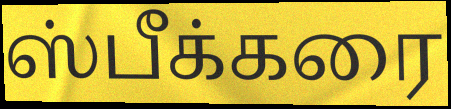
ஸ்பீக்கரை